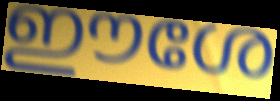
ഈശേ